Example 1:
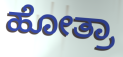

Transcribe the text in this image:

ಹೋತ್ರಾ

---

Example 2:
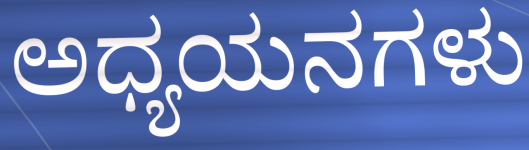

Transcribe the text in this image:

ಅಧ್ಯಯನಗಳು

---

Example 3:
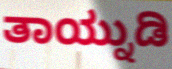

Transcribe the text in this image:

ತಾಯ್ನುಡಿ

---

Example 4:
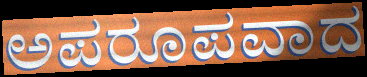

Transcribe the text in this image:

ಅಪರೂಪವಾದ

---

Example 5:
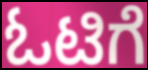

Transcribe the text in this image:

ಓಟಿಗೆ